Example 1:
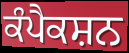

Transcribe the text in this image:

ਕੰਪੈਕਸ਼ਨ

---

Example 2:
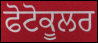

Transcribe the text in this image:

ਫੋਟੋਕੂਲਰ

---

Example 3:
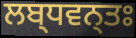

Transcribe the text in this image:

ਲਬ੍ਧਵਨ੍ਤਃ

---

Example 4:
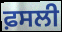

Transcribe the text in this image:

ਫ਼ਸਲੀ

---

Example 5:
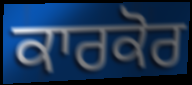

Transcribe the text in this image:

ਕਾਰਕੋਰ